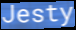
Jesty